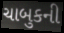
ચાબુકની